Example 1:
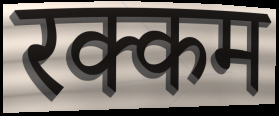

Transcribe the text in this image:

रक्कम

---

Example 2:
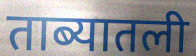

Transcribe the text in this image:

ताब्यातली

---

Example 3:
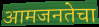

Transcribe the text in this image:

आमजनतेचा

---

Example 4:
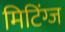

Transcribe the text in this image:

मिटिंग्ज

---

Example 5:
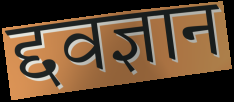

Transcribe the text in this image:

द्दवज्ञान